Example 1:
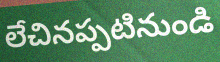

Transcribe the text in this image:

లేచినప్పటినుండి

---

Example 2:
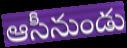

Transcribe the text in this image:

ఆసీనుండు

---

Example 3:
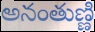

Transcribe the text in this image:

అనంతుణ్ణి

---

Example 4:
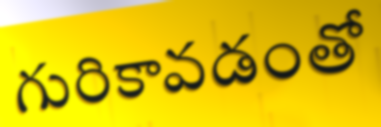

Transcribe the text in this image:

గురికావడంతో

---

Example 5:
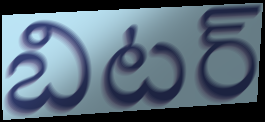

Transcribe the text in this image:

బిటర్